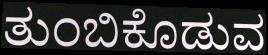
ತುಂಬಿಕೊಡುವ